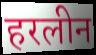
हरलीन